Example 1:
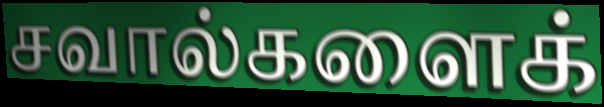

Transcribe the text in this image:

சவால்களைக்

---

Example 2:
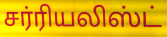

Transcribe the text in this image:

சர்ரியலிஸ்ட்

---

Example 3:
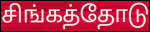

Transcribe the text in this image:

சிங்கத்தோடு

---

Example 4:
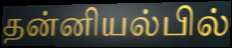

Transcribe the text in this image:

தன்னியல்பில்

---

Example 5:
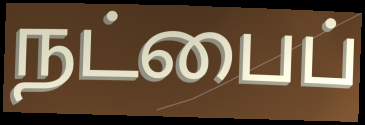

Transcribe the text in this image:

நட்பைப்